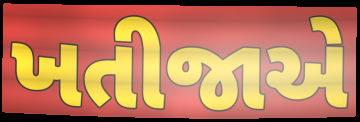
ખતીજાએ